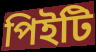
পিইটি